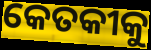
କେତକୀକୁ